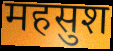
महसुश